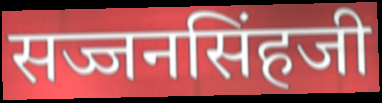
सज्जनसिंहजी